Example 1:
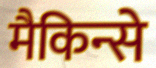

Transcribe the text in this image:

मैकिन्से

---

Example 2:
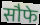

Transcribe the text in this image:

सौफे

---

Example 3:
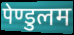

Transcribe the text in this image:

पेण्डुलम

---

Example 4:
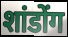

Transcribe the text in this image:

शांडोंग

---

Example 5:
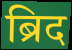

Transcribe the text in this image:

ब्रिद